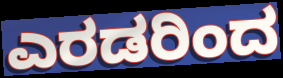
ಎರಡರಿಂದ